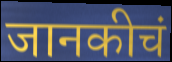
जानकीचं